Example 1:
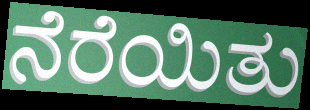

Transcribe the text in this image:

ನೆರೆಯಿತು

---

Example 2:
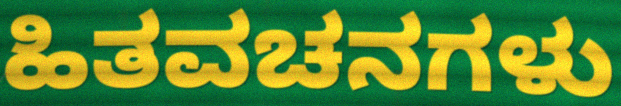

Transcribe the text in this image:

ಹಿತವಚನಗಳು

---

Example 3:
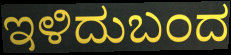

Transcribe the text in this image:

ಇಳಿದುಬಂದ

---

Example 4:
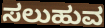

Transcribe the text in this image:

ಸಲುಹುವ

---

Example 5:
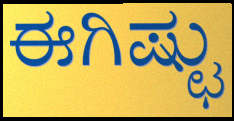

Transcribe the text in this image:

ಈಗಿಷ್ಟು